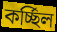
কর্চ্ছিল